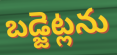
బడ్జెట్లను